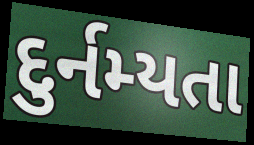
દુર્નમ્યતા